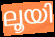
ലൂയി